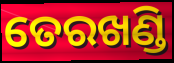
ତେରଖଣ୍ଡି